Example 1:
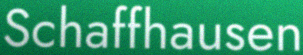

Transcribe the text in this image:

Schaffhausen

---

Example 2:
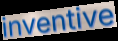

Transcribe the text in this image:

inventive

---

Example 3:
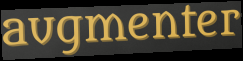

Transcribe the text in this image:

augmenter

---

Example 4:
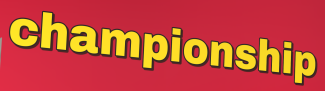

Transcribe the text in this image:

championship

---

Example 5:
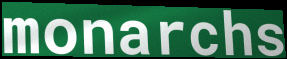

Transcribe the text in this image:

monarchs